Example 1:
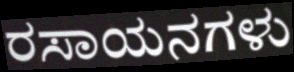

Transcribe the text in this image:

ರಸಾಯನಗಳು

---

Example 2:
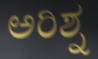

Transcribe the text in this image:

ಅರಿಶ್ನ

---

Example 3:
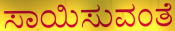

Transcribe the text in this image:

ಸಾಯಿಸುವಂತೆ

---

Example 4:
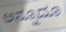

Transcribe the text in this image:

ಅನ್ನೂದೂ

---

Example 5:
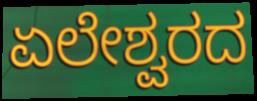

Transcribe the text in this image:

ಏಲೇಶ್ವರದ